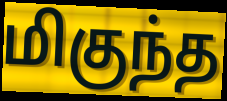
மிகுந்த